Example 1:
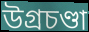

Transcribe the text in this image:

উগ্রচণ্ডা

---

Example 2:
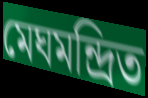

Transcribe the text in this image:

মেঘমন্দ্রিত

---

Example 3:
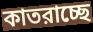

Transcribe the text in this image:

কাতরাচ্ছে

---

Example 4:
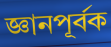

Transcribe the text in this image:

জ্ঞানপূর্বক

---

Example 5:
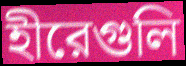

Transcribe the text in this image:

হীরেগুলি